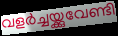
വളർച്ചയ്ക്കുവേണ്ടി